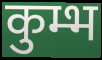
कुम्भ